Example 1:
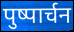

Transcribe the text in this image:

पुष्पार्चन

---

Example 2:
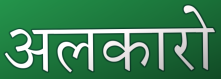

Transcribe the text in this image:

अलकारो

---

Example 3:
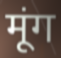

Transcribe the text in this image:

मूंग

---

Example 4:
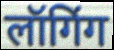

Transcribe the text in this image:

लॉगिंग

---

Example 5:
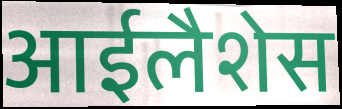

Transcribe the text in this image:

आईलैशेस